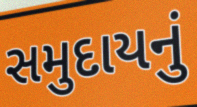
સમુદાયનું